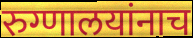
रुग्णालयांनाच